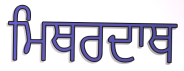
ਮਿਥਰਦਾਥ